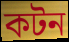
কটন